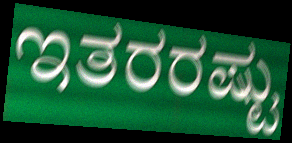
ಇತರರಷ್ಟು